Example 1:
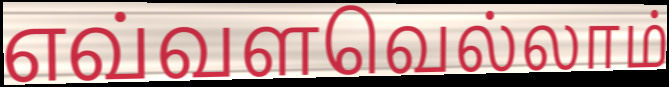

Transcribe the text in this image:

எவ்வளவெல்லாம்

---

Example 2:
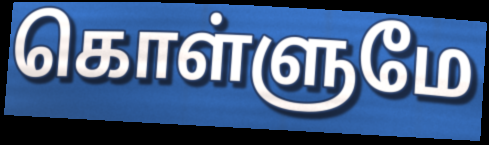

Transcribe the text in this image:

கொள்ளுமே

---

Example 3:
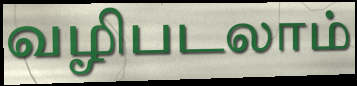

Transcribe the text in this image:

வழிபடலாம்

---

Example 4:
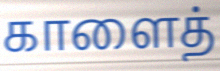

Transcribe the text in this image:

காளைத்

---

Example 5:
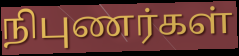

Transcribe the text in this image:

நிபுணர்கள்